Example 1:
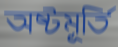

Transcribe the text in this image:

অষ্টমূৰ্তি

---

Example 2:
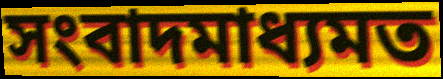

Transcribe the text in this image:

সংবাদমাধ্যমত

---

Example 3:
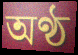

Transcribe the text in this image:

অণ্ঠ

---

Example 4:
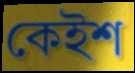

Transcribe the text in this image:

কেইশ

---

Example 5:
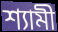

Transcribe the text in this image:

শ্যামী